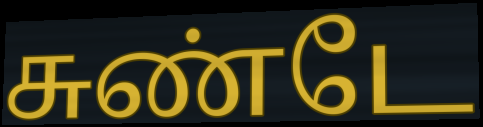
சுண்டே